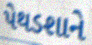
પેથડશાને